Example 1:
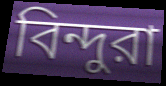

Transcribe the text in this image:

বিন্দুরা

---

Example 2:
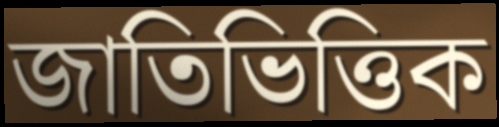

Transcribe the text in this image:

জাতিভিত্তিক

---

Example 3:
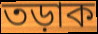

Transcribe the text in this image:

তড়াক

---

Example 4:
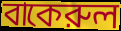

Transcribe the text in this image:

বাকেরুল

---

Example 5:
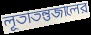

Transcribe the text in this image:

লূতাতন্তুজালের